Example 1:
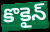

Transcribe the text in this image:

కొకైన్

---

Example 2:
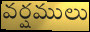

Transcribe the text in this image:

వర్షములు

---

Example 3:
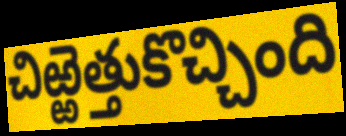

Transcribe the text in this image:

చిఱ్ఱెత్తుకొచ్చింది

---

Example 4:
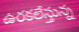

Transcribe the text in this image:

ఉరకలేస్తున్న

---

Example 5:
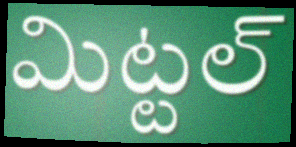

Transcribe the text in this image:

మిట్టల్